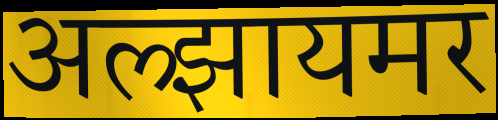
अल्झायमर